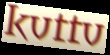
kuttu